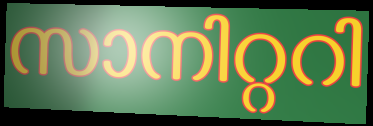
സാനിറ്ററി